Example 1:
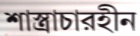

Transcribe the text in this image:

শাস্ত্রাচারহীন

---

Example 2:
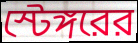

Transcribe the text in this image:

স্টেঙ্গরের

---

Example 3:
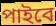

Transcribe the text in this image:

পাইবে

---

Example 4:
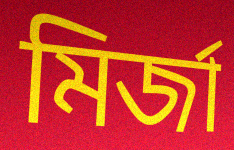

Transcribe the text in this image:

মির্জা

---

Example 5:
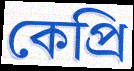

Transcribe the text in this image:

কেপ্রি